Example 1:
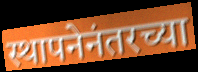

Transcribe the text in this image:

स्थापनेनंतरच्या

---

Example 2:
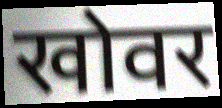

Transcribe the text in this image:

खोवर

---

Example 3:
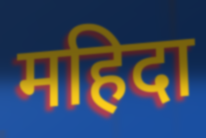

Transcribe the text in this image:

महिदा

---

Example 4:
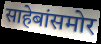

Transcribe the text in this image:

साहेबांसमोर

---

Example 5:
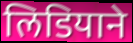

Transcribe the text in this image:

लिडियाने